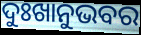
ଦୁଃଖାନୁଭବର